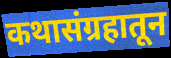
कथासंग्रहातून